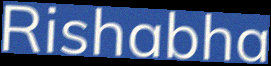
Rishabha